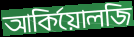
আর্কিয়োলজি